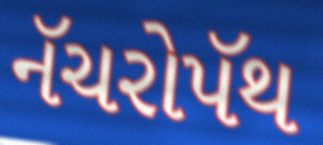
નૅચરોપૅથ